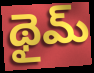
థైమ్